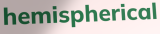
hemispherical